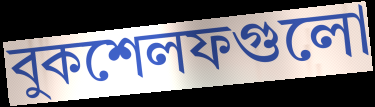
বুকশেলফগুলো